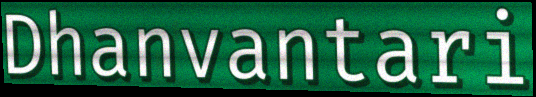
Dhanvantari